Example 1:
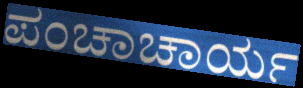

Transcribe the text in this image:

ಪಂಚಾಚಾರ್ಯ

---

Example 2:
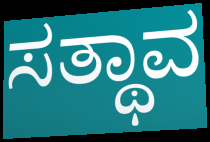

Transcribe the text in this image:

ಸತ್ಥಾವ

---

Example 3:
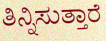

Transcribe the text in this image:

ತಿನ್ನಿಸುತ್ತಾರೆ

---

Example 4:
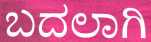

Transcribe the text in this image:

ಬದಲಾಗಿ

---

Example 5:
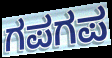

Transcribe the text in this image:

ಗಪಗಪ